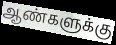
ஆண்களுக்கு